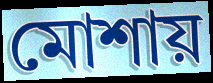
মোশায়